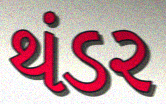
થંડર